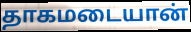
தாகமடையான்